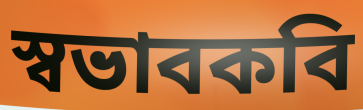
স্বভাবকবি